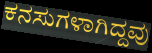
ಕನಸುಗಳಾಗಿದ್ದವು